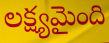
లక్ష్యమైంది